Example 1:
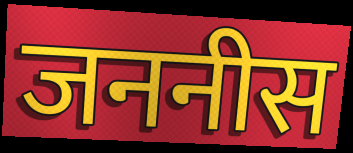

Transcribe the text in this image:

जननीस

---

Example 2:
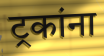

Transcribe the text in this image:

ट्रकांना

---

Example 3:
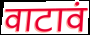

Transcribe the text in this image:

वाटावं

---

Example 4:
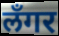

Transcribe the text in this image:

लँगर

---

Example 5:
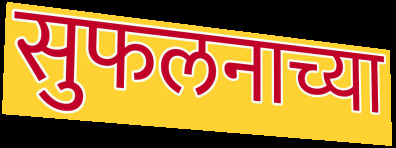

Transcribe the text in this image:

सुफलनाच्या